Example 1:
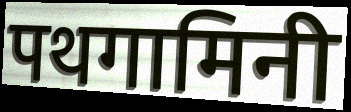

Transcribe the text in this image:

पथगामिनी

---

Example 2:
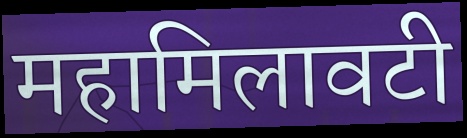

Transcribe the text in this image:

महामिलावटी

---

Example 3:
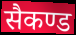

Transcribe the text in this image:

सैकण्ड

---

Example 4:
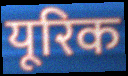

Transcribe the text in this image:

यूरिक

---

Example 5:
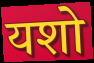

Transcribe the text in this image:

यशो